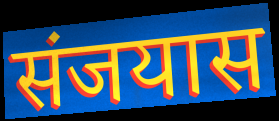
संजयास